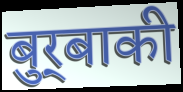
बुर्बाकी